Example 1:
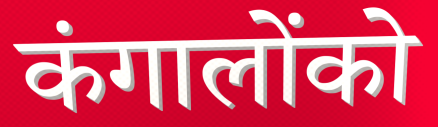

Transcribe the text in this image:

कंगालोंको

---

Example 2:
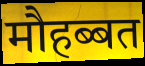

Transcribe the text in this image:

मौहब्बत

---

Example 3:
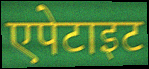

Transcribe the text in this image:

एपेटाइट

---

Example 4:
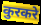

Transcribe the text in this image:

कुरकरे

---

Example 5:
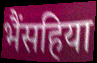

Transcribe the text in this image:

भैंसहिया